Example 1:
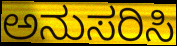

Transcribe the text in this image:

ಅನುಸರಿಸಿ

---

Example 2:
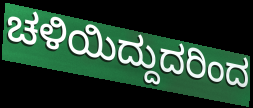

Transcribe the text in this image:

ಚಳಿಯಿದ್ದುದರಿಂದ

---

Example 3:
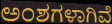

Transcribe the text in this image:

ಅಂಶಗಳಾಗಿವೆ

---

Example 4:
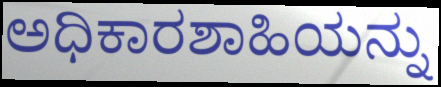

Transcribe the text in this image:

ಅಧಿಕಾರಶಾಹಿಯನ್ನು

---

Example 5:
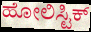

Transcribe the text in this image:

ಹೋಲಿಸ್ಟಿಕ್